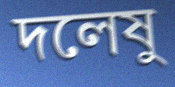
দলেষু